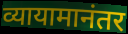
व्यायामानंतर